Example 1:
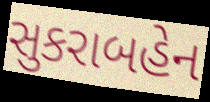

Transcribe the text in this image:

સુકરાબહેન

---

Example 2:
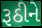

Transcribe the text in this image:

રૂઠીને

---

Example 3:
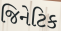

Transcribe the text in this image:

જિનેટિક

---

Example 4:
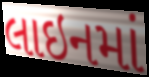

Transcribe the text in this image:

લાઇનમાં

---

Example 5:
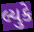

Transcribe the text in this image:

લ્યુકે